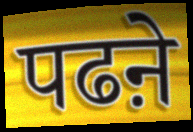
पढऩे